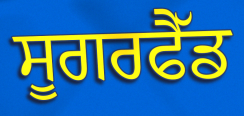
ਸੂਗਰਫੈੱਡ